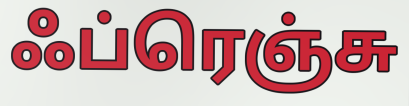
ஃப்ரெஞ்சு